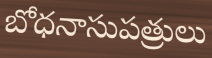
బోధనాసుపత్రులు